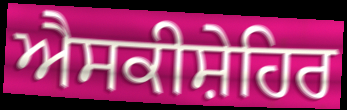
ਐਸਕੀਸ਼ੇਹਿਰ